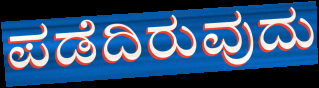
ಪಡೆದಿರುವುದು